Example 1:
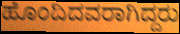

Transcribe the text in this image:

ಹೊಂದಿದವರಾಗಿದ್ದರು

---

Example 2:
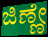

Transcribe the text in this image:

ಜಿಣ್ಣೇ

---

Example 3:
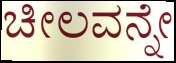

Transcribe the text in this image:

ಚೀಲವನ್ನೇ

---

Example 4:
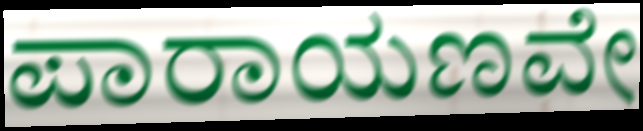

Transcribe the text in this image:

ಪಾರಾಯಣವೇ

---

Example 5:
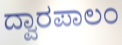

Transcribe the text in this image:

ದ್ವಾರಪಾಲಂ